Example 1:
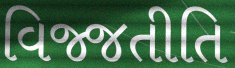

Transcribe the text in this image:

વિજ્જતીતિ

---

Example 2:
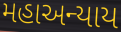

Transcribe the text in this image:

મહાઅન્યાય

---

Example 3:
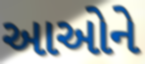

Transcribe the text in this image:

આઓને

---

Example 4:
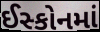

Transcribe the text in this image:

ઈસ્કોનમાં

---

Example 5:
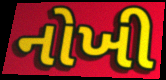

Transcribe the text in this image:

નોખી